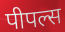
पीपल्स